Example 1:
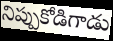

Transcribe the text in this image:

నిప్పుకోడిగాడు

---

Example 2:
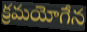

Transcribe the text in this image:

క్రమయోగేన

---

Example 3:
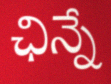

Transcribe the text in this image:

ఛిన్నే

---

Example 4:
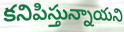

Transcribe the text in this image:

కనిపిస్తున్నాయని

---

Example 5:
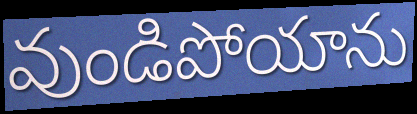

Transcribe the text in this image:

వుండిపోయాను